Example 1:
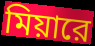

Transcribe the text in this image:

মিয়ারে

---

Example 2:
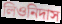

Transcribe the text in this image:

লিওনিদাস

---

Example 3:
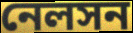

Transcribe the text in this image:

নেলসন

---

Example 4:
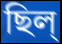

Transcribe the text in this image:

ছিল্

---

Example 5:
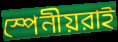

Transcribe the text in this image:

স্পেনীয়রাই